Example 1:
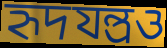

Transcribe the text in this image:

হৃদযন্ত্রও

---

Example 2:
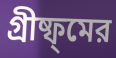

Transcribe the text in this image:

গ্রীষ্ফ্মের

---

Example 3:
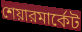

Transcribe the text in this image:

শেয়ারমার্কেট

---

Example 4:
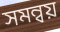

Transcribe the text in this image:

সমন্বয়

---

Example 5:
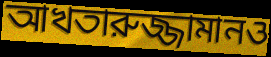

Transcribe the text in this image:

আখতারুজ্জামানও